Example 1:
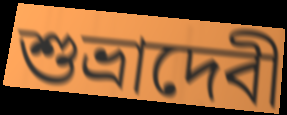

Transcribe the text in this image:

শুভ্রাদেবী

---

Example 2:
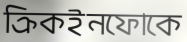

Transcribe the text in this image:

ক্রিকইনফোকে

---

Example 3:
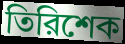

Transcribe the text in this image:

তিরিশেক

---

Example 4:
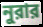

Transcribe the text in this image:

নুরার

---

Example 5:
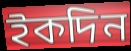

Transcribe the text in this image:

ইকদিন